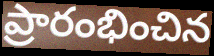
ప్రారంభించిన